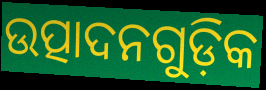
ଉତ୍ପାଦନଗୁଡ଼ିକ